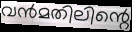
വൻമതിലിന്റെ